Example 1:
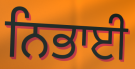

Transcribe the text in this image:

ਨਿਭਾਈ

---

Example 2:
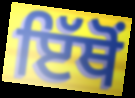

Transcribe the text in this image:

ਇੱਥੋਂ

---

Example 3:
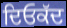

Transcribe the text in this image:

ਦਿਓਕੱਦ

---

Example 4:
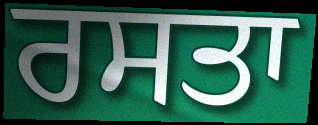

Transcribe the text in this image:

ਰਸਤਾ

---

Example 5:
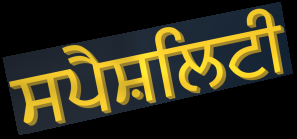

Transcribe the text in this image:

ਸਪੈਸ਼ਲਿਟੀ